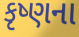
કૃષ્ણના